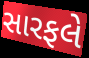
સારફલે